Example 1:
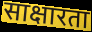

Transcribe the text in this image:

साक्षारता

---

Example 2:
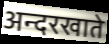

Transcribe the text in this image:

अन्दरखाते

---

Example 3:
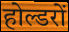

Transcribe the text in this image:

होल्‍डरों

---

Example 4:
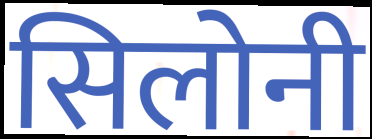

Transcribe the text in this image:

सिलोनी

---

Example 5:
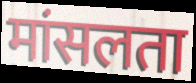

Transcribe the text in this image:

मांसलता